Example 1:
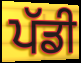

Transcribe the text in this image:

ਪੱਡੀ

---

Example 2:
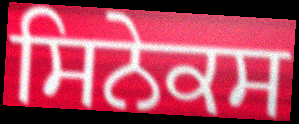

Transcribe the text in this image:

ਸਿਨੇਕਸ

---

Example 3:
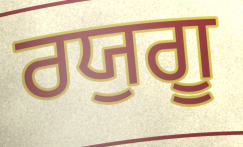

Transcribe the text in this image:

ਰਯੁਗੂ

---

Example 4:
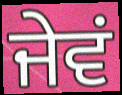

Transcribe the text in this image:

ਜੇਵਂ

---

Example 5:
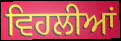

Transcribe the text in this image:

ਵਿਹਲੀਆਂ